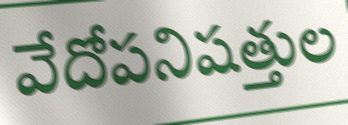
వేదోపనిషత్తుల